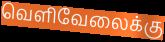
வெளிவேலைக்கு